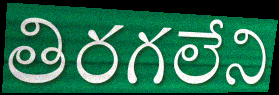
తిరగలేని